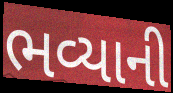
ભવ્યાની